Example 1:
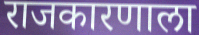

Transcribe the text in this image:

राजकारणाला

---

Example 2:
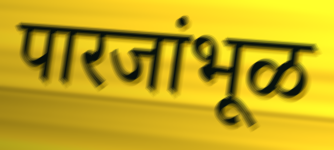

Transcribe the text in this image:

पारजांभूळ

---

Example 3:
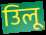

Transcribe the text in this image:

उिलू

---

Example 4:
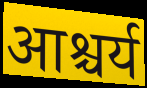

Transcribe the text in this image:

आश्चर्य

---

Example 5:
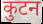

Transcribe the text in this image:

कुटन